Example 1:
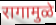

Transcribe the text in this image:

रागामुळे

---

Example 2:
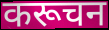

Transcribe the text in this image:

करूचन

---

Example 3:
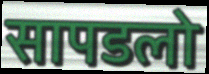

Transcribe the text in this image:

सापडलो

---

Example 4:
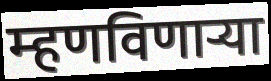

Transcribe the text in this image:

म्हणविणाऱ्या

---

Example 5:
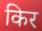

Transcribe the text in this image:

किर